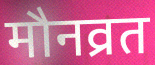
मौनव्रत